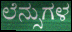
ಲೆನ್ಸುಗಳ